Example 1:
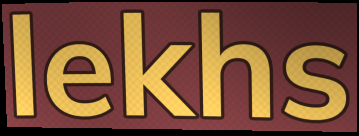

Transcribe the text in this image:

lekhs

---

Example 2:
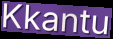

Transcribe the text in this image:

Kkantu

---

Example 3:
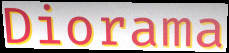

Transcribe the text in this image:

Diorama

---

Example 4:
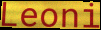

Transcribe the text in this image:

Leoni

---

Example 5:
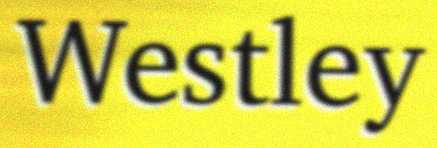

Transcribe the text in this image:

Westley